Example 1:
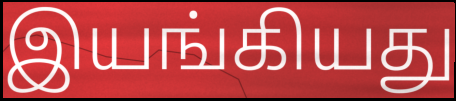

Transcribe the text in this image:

இயங்கியது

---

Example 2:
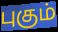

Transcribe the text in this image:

புகும்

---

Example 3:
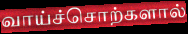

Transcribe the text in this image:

வாய்ச்சொற்களால்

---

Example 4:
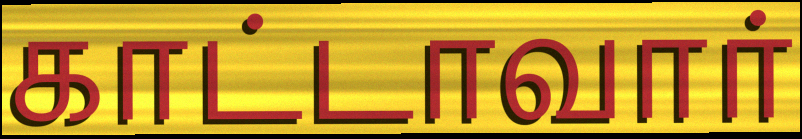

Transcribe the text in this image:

காட்டாவார்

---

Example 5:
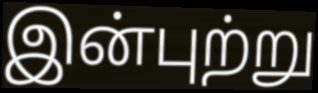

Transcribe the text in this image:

இன்புற்று